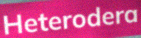
Heterodera